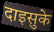
दाइसुके